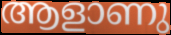
ആളാണു